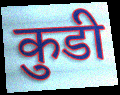
कुडी